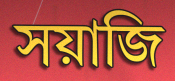
সয়াজি